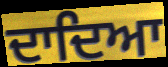
ਦਾਦਿਆ